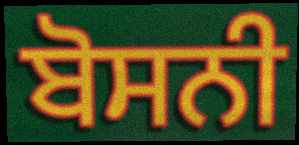
ਬੋਸਨੀ